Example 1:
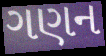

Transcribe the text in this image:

ગણન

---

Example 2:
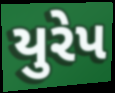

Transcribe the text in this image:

યુરેપ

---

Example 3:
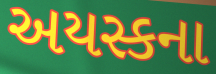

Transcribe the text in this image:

અયસ્કના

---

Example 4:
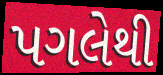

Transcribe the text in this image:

પગલેથી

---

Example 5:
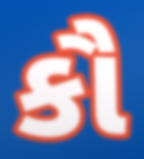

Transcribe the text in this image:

કૌ